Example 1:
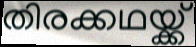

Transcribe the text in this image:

തിരക്കഥയ്ക്ക്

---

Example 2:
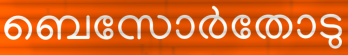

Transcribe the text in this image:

ബെസോർതോടു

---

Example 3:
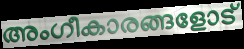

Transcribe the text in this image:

അംഗീകാരങ്ങളോട്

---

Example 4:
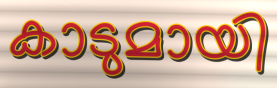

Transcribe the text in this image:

കാടുമായി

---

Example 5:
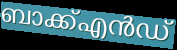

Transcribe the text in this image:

ബാക്ക്എൻഡ്